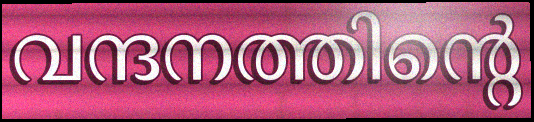
വന്ദനത്തിന്റെ